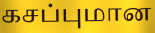
கசப்புமான